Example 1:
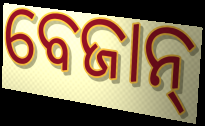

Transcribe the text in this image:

ବେଜାନ୍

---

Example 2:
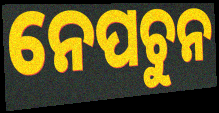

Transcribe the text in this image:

ନେପଚୁନ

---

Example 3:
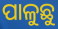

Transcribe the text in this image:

ପାଳୁଛୁ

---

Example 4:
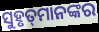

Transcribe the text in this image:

ସୁହୃତ୍‌ମାନଙ୍କର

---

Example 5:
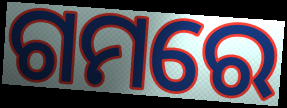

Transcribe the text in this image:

ଗମରେ